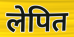
लेपित